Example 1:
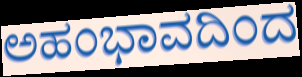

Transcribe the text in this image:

ಅಹಂಭಾವದಿಂದ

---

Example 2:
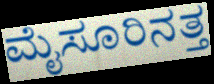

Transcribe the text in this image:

ಮೈಸೂರಿನತ್ತ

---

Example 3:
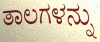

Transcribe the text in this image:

ತಾಲಗಳನ್ನು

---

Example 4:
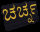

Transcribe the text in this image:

ಚರ್ಚ್ನ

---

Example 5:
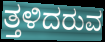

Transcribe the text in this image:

ತ್ತಳಿದರುವ